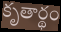
కృతార్థం